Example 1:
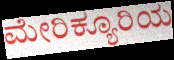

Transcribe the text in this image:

ಮೇರಿಕ್ಯೂರಿಯ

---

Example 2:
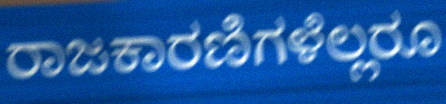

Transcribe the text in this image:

ರಾಜಕಾರಣಿಗಳೆಲ್ಲರೂ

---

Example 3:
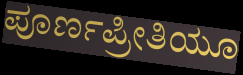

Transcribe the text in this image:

ಪೂರ್ಣಪ್ರೀತಿಯೂ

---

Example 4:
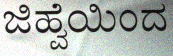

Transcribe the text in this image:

ಜಿಹ್ವೆಯಿಂದ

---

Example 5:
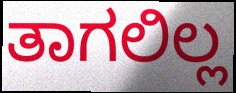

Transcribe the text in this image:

ತಾಗಲಿಲ್ಲ